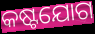
କଷ୍ଟଯୋଗ